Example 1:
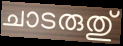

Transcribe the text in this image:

ചാടരുതു്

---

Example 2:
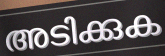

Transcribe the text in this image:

അടിക്കുക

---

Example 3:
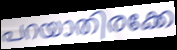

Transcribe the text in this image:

പറയാതിരക്കേ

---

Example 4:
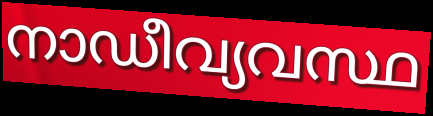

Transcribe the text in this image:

നാഡീവ്യവസ്ഥ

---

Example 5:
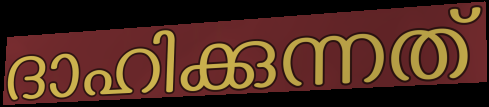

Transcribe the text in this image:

ദാഹിക്കുന്നത്